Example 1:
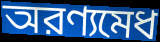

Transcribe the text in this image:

অরণ্যমেধ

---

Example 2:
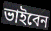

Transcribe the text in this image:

ভাইবেন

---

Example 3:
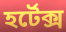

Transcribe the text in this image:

হর্টেক্স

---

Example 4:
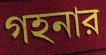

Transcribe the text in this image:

গহনার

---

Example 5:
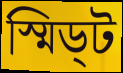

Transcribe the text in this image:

স্মিড্ট